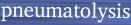
pneumatolysis